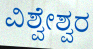
ವಿಶ್ವೇಶ್ವರ